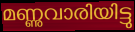
മണ്ണുവാരിയിട്ടു